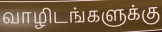
வாழிடங்களுக்கு